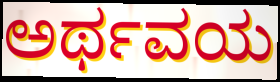
ಅರ್ಥವಯ